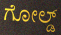
ಗೋಲ್ಡ್